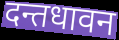
दन्तधावन